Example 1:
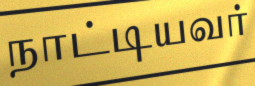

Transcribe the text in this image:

நாட்டியவர்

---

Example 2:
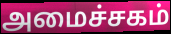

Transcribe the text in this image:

அமைச்சகம்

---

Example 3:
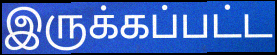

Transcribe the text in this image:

இருக்கப்பட்ட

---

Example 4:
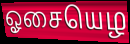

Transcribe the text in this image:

ஓசையெழ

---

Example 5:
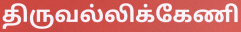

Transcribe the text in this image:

திருவல்லிக்கேணி